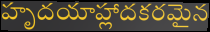
హృదయాహ్లాదకరమైన